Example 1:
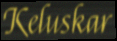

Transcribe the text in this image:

Keluskar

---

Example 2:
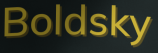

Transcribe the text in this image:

Boldsky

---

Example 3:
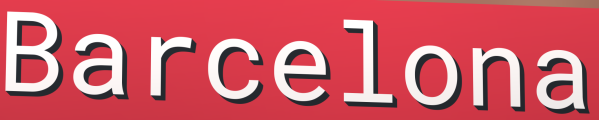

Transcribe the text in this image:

Barcelona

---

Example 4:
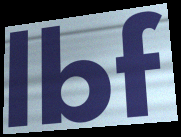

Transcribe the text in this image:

lbf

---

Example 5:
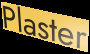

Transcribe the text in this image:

Plaster